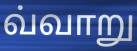
வ்வாறு